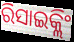
ରିସାଇକ୍ଲିଂ